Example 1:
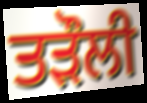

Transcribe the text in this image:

ਤੜੌਲੀ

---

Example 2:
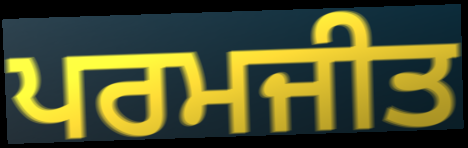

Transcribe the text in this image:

ਪਰਮਜੀਤ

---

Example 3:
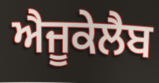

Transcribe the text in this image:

ਐਜੂਕੇਲੈਬ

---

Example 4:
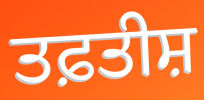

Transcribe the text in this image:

ਤਫ਼ਤੀਸ਼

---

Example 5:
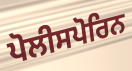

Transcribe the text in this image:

ਪੋਲੀਸਪੋਰਿਨ